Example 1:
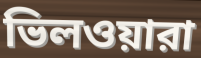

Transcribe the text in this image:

ভিলওয়ারা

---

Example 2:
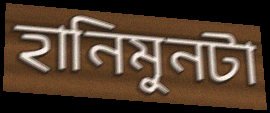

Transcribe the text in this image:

হানিমুনটা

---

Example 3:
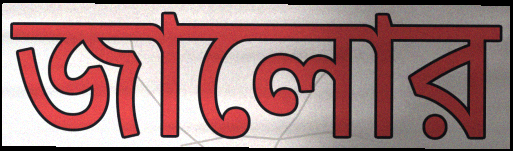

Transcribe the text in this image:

জালোর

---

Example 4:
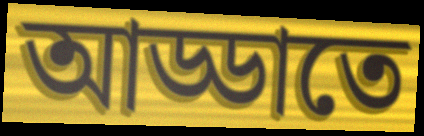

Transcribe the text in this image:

আড্ডাতে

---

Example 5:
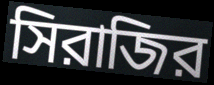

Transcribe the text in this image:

সিরাজির